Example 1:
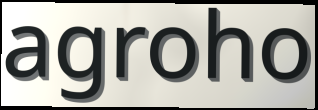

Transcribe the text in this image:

agroho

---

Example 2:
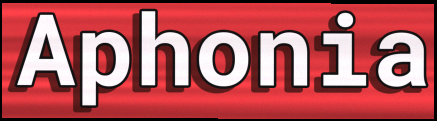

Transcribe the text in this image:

Aphonia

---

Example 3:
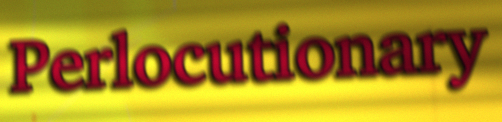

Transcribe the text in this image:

Perlocutionary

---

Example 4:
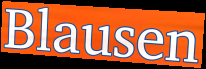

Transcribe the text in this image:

Blausen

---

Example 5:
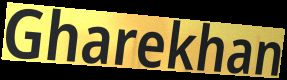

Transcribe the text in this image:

Gharekhan